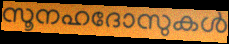
സൂനഹദോസുകൾ